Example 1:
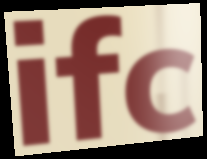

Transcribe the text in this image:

ifc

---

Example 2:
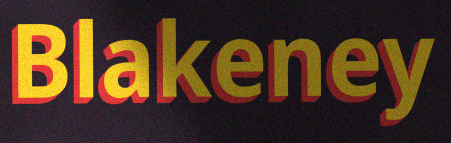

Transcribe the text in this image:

Blakeney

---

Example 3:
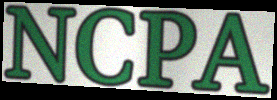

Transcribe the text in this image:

NCPA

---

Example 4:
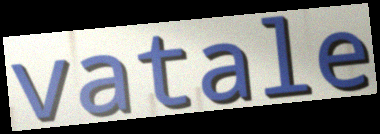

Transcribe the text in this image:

vatale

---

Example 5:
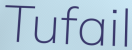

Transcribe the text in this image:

Tufail